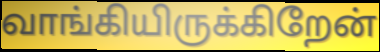
வாங்கியிருக்கிறேன்